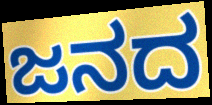
ಜನದ